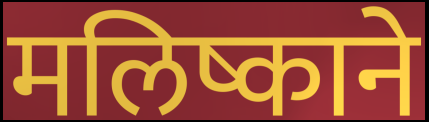
मलिष्काने